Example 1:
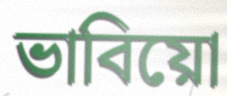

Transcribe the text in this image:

ভাবিয়ো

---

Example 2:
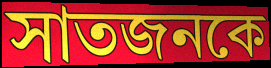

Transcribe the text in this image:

সাতজনকে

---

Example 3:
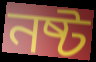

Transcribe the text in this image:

নষ্ট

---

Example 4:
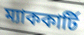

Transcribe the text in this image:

ম্যাককার্টি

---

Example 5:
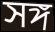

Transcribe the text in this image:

সঙ্গ